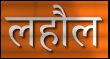
लहौल